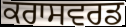
ਕਰਾਸਵਰਡ